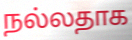
நல்லதாக